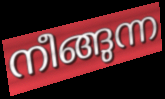
നീങ്ങുന്ന